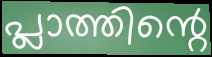
പ്ലാത്തിന്റെ